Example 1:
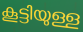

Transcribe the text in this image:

കൂട്ടിയുള്ള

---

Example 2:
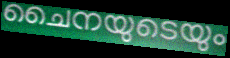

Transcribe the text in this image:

ചൈനയുടെയും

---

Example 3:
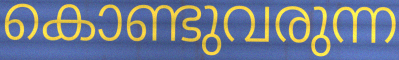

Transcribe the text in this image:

കൊണ്ടുവരുന്ന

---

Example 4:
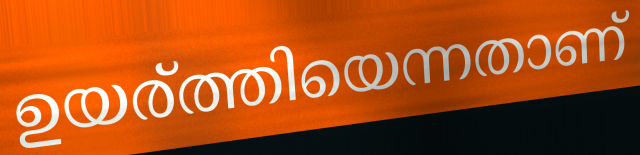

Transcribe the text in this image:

ഉയര്ത്തിയെന്നതാണ്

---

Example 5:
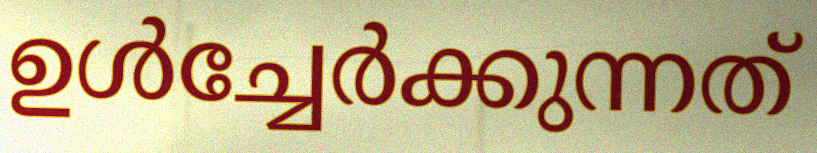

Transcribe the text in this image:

ഉൾച്ചേർക്കുന്നത്